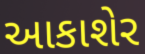
આકાશેર